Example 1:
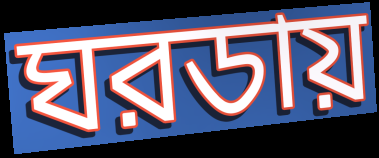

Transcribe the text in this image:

ঘরডায়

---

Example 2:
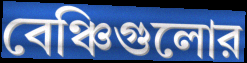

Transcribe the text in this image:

বেঞ্চিগুলোর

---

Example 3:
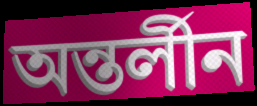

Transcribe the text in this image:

অন্তর্লীন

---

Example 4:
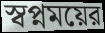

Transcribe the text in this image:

স্বপ্নময়ের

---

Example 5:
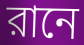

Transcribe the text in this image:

রানে